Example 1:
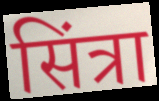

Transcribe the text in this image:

सिंत्रा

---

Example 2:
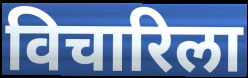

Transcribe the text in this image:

विचारिला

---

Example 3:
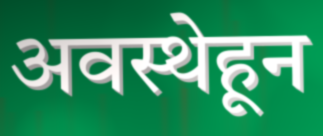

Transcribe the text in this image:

अवस्थेहून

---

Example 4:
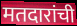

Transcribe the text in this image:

मतदारांची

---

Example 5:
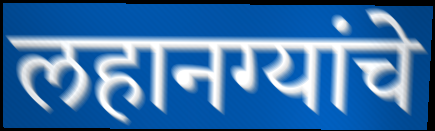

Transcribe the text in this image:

लहानग्यांचे